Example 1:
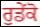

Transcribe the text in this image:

ਰੁਡੇਂਕੋ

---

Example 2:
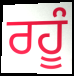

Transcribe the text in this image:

ਰਹੂੰ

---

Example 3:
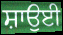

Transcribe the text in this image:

ਸ਼ਾਉਈ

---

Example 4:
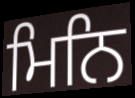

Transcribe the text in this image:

ਮਿਨਿ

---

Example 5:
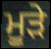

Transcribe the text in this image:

ਮੂੜੇ